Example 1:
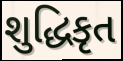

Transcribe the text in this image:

શુદ્ધિકૃત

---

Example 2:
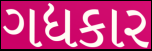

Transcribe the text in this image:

ગદ્યકાર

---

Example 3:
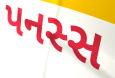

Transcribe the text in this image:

પનસ્સ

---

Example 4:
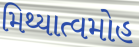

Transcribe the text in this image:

મિથ્યાત્વમોહ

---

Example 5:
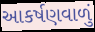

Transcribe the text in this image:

આકર્ષણવાળું